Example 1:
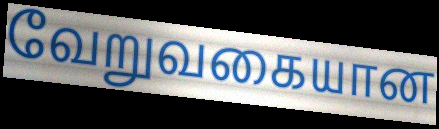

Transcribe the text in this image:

வேறுவகையான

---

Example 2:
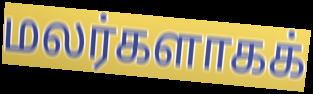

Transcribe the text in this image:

மலர்களாகக்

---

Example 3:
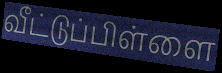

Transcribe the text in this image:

வீட்டுப்பிள்ளை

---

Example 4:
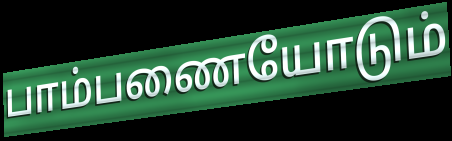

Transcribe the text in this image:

பாம்பணையோடும்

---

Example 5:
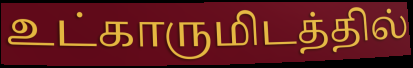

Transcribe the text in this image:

உட்காருமிடத்தில்